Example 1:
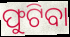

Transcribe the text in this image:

ଫୁଟିବା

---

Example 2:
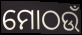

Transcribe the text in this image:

ମୋଠଉଁ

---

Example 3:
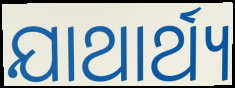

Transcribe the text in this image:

ଯାଥାର୍ଥ୍ୟ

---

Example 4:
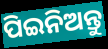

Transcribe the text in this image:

ପିଇନିଅନ୍ତୁ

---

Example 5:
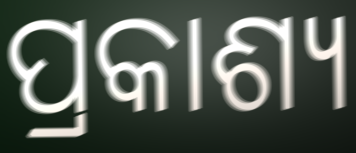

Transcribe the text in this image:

ପ୍ରକାଶ୍ୟ